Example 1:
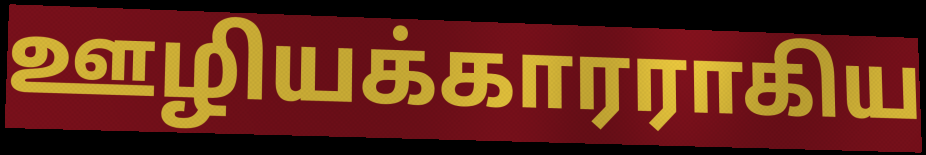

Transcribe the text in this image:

ஊழியக்காரராகிய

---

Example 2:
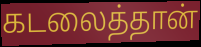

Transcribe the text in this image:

கடலைத்தான்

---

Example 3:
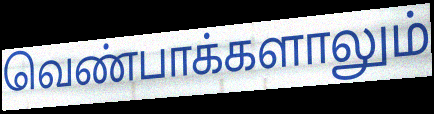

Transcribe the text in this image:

வெண்பாக்களாலும்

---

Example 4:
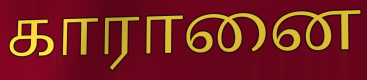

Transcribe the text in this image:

காரானை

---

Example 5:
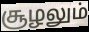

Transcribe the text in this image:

சூழலும்